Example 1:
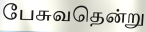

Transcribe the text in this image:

பேசுவதென்று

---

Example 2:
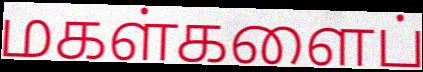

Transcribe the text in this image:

மகள்களைப்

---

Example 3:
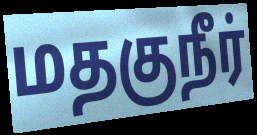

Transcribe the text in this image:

மதகுநீர்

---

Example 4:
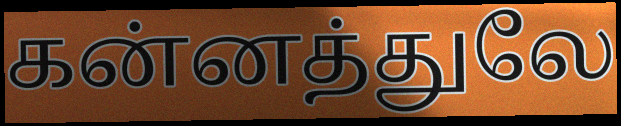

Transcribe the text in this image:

கன்னத்துலே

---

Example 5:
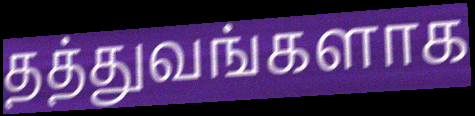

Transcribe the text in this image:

தத்துவங்களாக